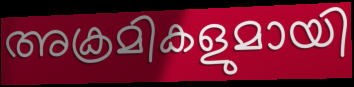
അക്രമികളുമായി